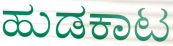
ಹುಡಕಾಟ